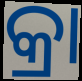
କ୍ରା